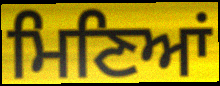
ਮਿਣਿਆਂ